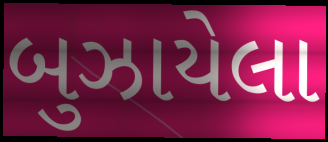
બુઝાયેલા